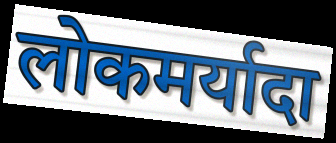
लोकमर्यादा